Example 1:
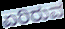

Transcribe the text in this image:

ಏರಿರುವ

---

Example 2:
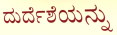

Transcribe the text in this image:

ದುರ್ದೆಶೆಯನ್ನು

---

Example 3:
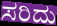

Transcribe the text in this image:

ಸರಿದು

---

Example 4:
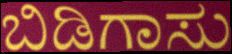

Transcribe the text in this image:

ಬಿಡಿಗಾಸು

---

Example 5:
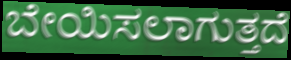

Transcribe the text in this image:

ಬೇಯಿಸಲಾಗುತ್ತದೆ